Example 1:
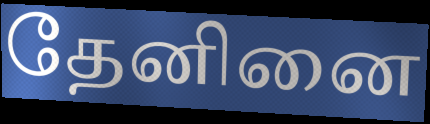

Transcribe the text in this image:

தேனினை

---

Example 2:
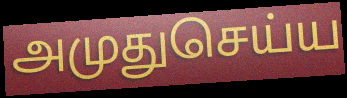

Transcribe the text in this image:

அமுதுசெய்ய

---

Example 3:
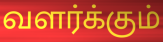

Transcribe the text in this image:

வளர்க்கும்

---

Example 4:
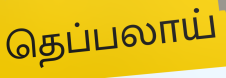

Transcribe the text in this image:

தெப்பலாய்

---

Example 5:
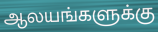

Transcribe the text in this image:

ஆலயங்களுக்கு